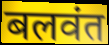
बलवंत